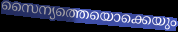
സൈന്യത്തെയൊക്കെയും